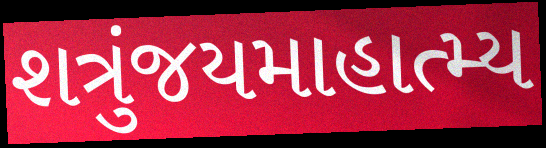
શત્રુંજયમાહાત્મ્ય